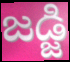
జడ్జి